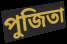
পুজিতা